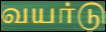
வயர்டு